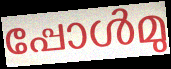
പ്പോൾമു